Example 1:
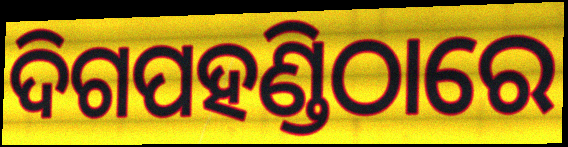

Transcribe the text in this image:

ଦିଗପହଣ୍ଡିଠାରେ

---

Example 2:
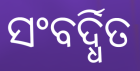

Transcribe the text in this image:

ସଂବର୍ଦ୍ଧିତ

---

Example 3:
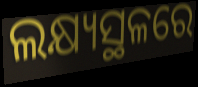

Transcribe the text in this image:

ଲକ୍ଷ୍ୟସ୍ଥଳରେ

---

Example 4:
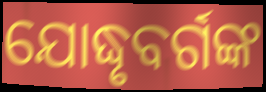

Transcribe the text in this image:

ଯୋଦ୍ଧୃବର୍ଗଙ୍କ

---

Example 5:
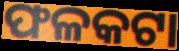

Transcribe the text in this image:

ଫଳକଟା